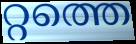
റ്റത്തെ